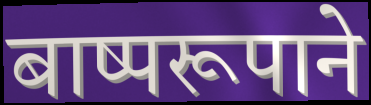
बाष्परूपाने